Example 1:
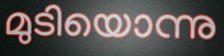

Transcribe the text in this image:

മുടിയൊന്നു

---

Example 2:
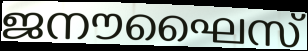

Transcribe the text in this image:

ജനൗഘൈസ്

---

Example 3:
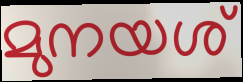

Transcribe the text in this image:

മുനയശ്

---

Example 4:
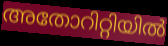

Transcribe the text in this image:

അതോറിറ്റിയിൽ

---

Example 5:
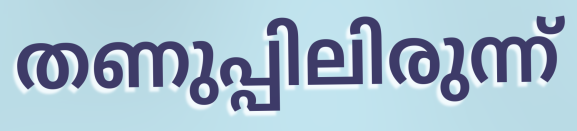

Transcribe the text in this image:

തണുപ്പിലിരുന്ന്